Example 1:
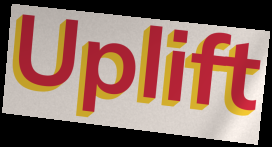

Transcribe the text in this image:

Uplift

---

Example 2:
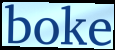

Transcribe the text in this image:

boke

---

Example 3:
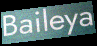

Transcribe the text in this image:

Baileya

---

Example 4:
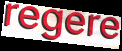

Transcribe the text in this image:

regere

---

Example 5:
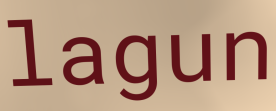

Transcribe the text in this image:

lagun